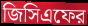
জিসিএফের